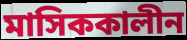
মাসিককালীন